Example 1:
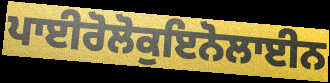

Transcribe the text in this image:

ਪਾਈਰੋਲੋਕੁਇਨੋਲਾਈਨ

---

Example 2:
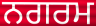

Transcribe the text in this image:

ਨਗਰਮ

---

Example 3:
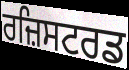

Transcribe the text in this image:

ਰਜ਼ਿਸਟਰਡ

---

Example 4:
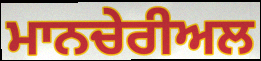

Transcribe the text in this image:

ਮਾਨਚੇਰੀਅਲ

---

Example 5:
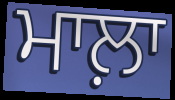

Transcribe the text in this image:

ਮਾਲ਼ਾ